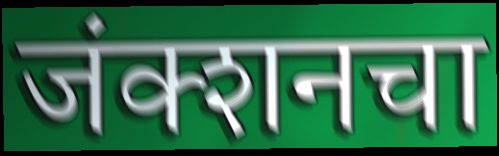
जंक्शनचा